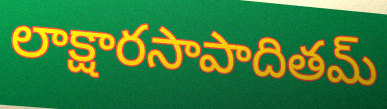
లాక్షారసాపాదితమ్